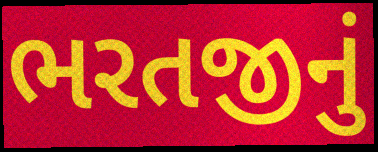
ભરતજીનું